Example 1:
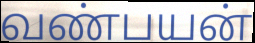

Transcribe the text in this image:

வண்பயன்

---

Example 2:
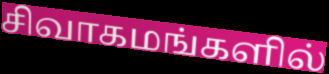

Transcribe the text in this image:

சிவாகமங்களில்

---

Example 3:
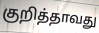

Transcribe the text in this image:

குறித்தாவது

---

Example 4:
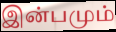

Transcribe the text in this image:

இன்பமும்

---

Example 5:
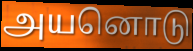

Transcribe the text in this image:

அயனொடு